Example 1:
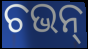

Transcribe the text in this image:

ଚଭନ୍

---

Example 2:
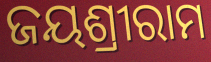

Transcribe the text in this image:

ଜୟଶ୍ରୀରାମ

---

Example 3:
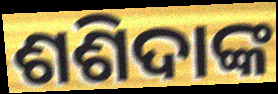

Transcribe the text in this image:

ଶଶିଦାଙ୍କ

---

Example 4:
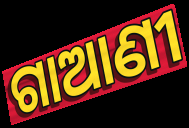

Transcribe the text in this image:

ଗାଆଣୀ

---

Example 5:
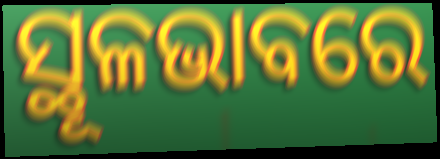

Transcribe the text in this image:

ସ୍ଥୂଳଭାବରେ